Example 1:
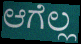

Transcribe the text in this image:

ಆಗೆಲ್ಲ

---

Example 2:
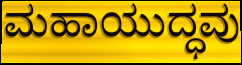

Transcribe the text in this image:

ಮಹಾಯುದ್ಧವು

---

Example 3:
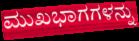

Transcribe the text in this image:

ಮುಖಭಾಗಗಳನ್ನು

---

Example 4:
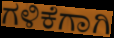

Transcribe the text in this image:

ಗಳಿಕೆಗಾಗಿ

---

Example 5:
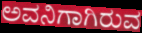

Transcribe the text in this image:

ಅವನಿಗಾಗಿರುವ